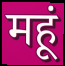
महूं